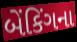
બેંકિંગના